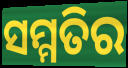
ସମ୍ମତିର